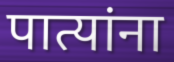
पात्यांना